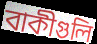
বাকীগুলি